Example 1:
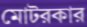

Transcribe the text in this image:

মোটরকার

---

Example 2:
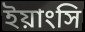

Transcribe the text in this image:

ইয়াংসি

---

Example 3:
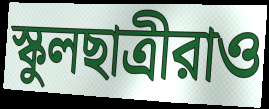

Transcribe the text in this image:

স্কুলছাত্রীরাও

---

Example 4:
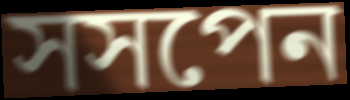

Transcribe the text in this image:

সসপেন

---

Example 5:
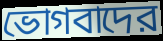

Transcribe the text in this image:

ভোগবাদের